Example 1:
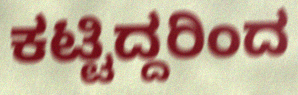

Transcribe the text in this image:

ಕಟ್ಟಿದ್ದರಿಂದ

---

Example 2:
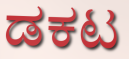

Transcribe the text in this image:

ಡಕಟ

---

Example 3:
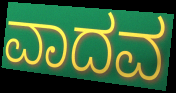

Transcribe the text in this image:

ವಾದವ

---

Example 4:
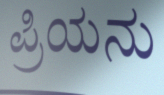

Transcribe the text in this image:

ಪ್ರಿಯನು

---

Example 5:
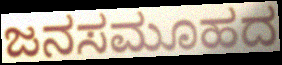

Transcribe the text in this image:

ಜನಸಮೂಹದ